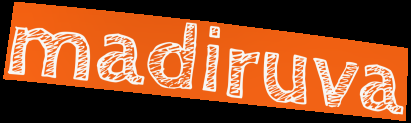
madiruva